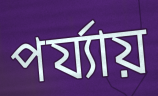
পৰ্য্যায়